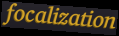
focalization